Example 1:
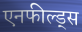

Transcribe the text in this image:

एनफील्ड्स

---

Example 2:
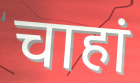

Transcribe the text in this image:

चाहां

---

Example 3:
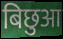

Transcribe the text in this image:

बिछुआ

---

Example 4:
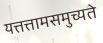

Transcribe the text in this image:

यत्तत्तामसमुच्यते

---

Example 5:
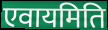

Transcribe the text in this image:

एवायमिति